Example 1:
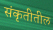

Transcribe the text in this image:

संकृतीतील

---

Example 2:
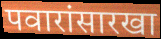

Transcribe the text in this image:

पवारांसारखा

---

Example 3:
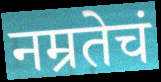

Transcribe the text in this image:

नम्रतेचं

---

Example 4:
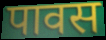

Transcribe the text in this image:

पावस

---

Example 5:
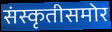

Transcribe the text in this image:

संस्कृतीसमोर